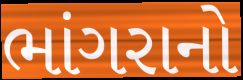
ભાંગરાનો